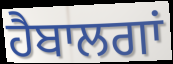
ਹੈਬਾਲਗਾਂ